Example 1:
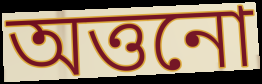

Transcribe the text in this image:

অত্তনো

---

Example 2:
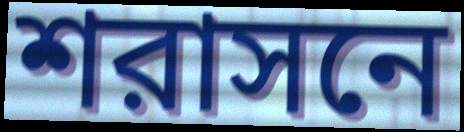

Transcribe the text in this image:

শরাসনে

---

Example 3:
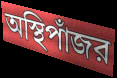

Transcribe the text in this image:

অস্থিপাঁজর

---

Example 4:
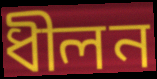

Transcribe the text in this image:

ধীলন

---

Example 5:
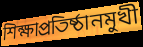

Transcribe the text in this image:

শিক্ষাপ্রতিষ্ঠানমুখী